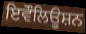
ਇਵੌਲਿਊਸ਼ਨ